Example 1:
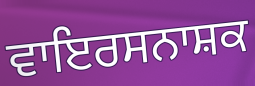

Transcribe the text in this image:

ਵਾਇਰਸਨਾਸ਼ਕ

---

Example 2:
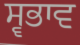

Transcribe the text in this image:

ਸ੍ਵਭਾਵ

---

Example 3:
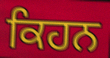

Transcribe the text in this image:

ਕਿਹਨ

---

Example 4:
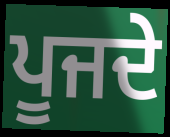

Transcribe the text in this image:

ਪੂਜਦੇ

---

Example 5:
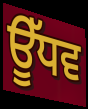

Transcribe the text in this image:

ਊੱਧਵ